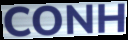
CONH